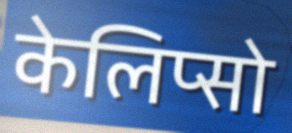
केलिप्सो